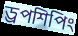
ড্রপশিপিং